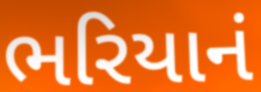
ભરિયાનં